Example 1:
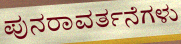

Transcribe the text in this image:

ಪುನರಾವರ್ತನೆಗಳು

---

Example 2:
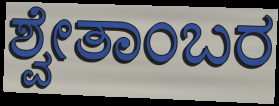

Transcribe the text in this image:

ಶ್ವೇತಾಂಬರ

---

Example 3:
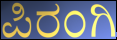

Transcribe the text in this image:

ಪಿರಂಗಿ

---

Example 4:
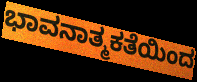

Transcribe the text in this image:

ಭಾವನಾತ್ಮಕತೆಯಿಂದ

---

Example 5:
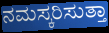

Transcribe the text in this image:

ನಮಸ್ಕರಿಸುತ್ತಾ